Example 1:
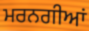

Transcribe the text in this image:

ਮਰਨਗੀਆਂ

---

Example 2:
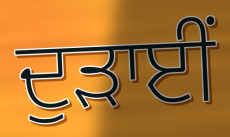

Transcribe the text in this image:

ਦੁੜਾਈਂ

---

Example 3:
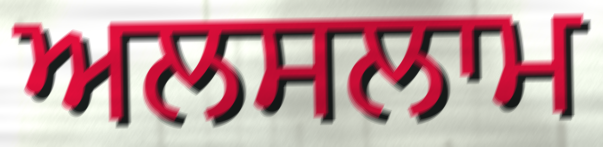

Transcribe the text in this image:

ਅਲਸਲਾਮ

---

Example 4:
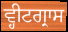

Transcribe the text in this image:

ਵ੍ਹੀਟਗ੍ਰਾਸ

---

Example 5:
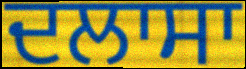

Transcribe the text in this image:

ਦਲਾਸਾ